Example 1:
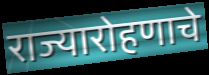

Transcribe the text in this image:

राज्यारोहणाचे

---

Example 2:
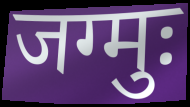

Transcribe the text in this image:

जग्मुः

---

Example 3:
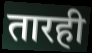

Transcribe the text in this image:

तारही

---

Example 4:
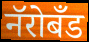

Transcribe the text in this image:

नॅरोबँड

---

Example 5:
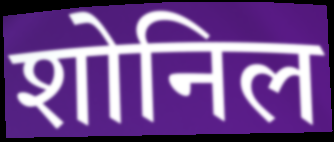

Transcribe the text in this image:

शोनिल